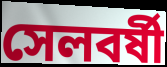
সেলবর্ষী